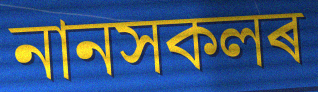
নানসকলৰ